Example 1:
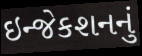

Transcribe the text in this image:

ઇન્જેકશનનું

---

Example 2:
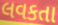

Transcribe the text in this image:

લવકતા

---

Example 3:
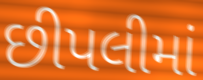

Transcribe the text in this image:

છીપલીમાં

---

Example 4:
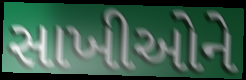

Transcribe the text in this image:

સાખીઓને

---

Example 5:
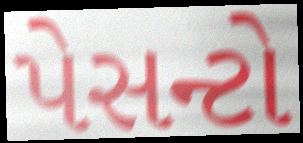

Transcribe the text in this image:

પેસન્ટો